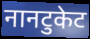
नानटुकेट